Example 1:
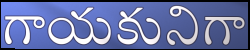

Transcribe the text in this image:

గాయకునిగా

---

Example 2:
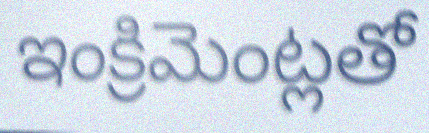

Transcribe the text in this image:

ఇంక్రిమెంట్లతో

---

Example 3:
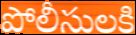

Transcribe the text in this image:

పోలీసులకి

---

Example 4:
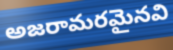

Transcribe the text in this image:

అజరామరమైనవి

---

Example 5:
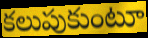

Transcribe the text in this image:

కలుపుకుంటూ